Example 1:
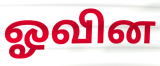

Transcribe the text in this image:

ஓவின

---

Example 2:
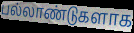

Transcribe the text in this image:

பல்லாண்டுகளாக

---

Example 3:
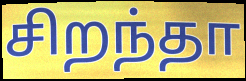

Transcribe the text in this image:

சிறந்தா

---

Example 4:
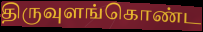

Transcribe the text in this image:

திருவுளங்கொண்ட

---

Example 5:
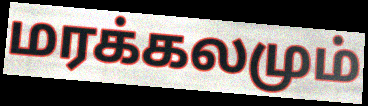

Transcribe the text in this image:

மரக்கலமும்